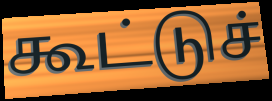
கூட்டுச்